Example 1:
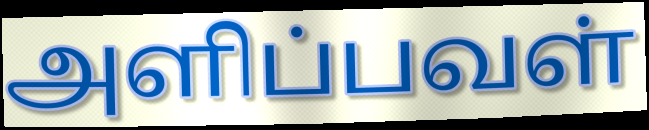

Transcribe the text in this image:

அளிப்பவள்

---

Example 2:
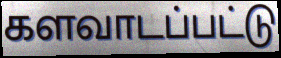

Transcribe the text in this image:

களவாடப்பட்டு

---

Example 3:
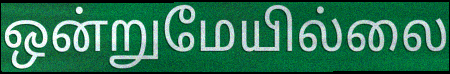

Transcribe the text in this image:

ஒன்றுமேயில்லை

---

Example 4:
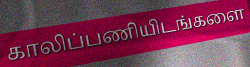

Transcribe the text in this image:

காலிப்பணியிடங்களை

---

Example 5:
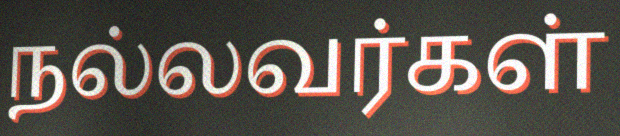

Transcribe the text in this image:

நல்லவர்கள்